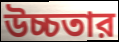
উচ্চতার